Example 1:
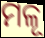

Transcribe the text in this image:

ମଳୂ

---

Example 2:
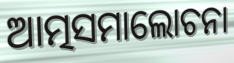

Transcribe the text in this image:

ଆତ୍ମସମାଲୋଚନା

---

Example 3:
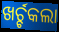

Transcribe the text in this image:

ଖର୍ଚ୍ଚକଲା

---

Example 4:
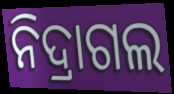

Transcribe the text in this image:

ନିଦ୍ରାଗଲ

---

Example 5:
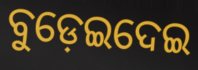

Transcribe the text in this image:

ବୁଡ଼େଇଦେଇ